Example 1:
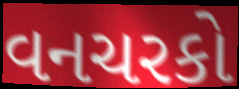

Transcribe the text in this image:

વનચરકો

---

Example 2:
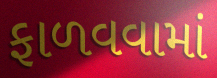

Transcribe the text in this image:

ફાળવવામાં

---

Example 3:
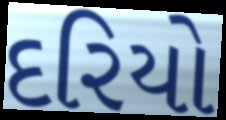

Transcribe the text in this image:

દરિયો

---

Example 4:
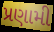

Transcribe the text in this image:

પ્રણામી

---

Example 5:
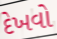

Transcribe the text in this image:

દેખવો